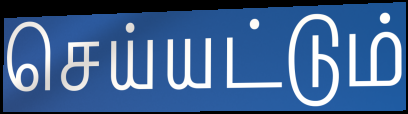
செய்யட்டும்